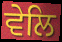
ਵੇਲਿ